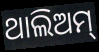
ଥାଲିଅମ୍